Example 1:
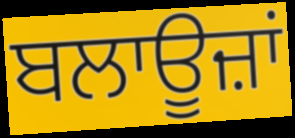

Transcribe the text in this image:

ਬਲਾਊਜ਼ਾਂ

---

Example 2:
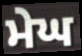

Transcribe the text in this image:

ਮੇਘ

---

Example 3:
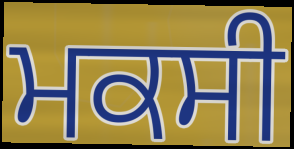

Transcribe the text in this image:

ਮਕਸੀ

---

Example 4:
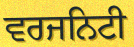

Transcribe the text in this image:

ਵਰਜਨਿਟੀ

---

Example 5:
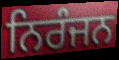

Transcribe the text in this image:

ਨਿਰੰਜਨ